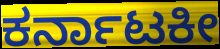
ಕರ್ನಾಟಕೀ